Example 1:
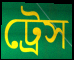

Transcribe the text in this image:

ট্রেস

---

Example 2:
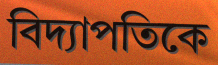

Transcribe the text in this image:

বিদ্যাপতিকে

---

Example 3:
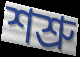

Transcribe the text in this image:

শশ্রু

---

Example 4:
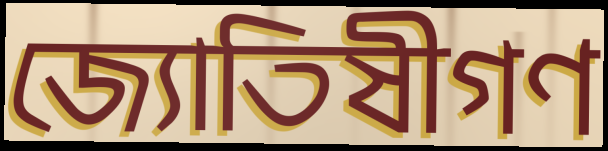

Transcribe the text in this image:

জ্যোতিষীগণ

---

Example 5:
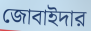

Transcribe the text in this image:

জোবাইদার